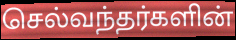
செல்வந்தர்களின்